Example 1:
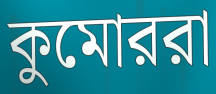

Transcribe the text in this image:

কুমোররা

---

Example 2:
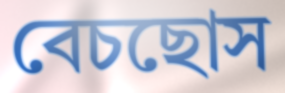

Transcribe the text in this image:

বেচছোস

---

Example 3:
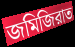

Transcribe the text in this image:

জমিজিরাত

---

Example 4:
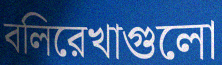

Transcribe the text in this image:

বলিরেখাগুলো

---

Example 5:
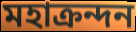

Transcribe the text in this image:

মহাক্রন্দন